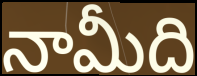
నామీది